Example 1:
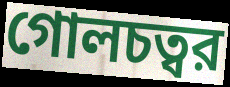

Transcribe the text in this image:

গোলচত্বর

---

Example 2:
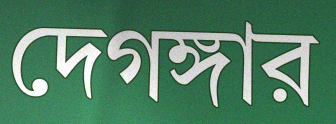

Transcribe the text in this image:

দেগঙ্গার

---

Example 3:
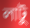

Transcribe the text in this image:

লাটু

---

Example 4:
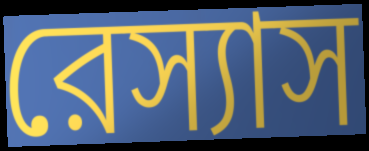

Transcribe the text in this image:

রেস্যাস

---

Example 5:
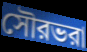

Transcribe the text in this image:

সৌরভরা